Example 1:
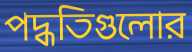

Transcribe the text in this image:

পদ্ধতিগুলোর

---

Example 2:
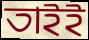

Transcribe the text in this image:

তাইই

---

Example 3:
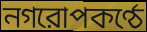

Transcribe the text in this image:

নগরোপকণ্ঠে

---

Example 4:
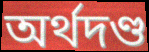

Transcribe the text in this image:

অর্থদণ্ড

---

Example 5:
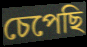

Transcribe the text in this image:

চেপেছি